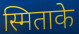
स्मिताके